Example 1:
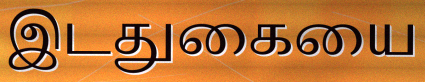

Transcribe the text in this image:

இடதுகையை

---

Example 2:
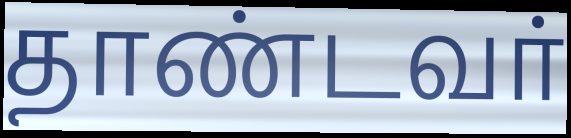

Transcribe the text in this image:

தாண்டவர்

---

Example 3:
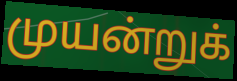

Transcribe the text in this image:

முயன்றுக்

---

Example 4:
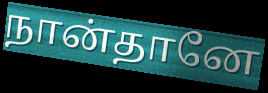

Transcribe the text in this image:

நான்தானே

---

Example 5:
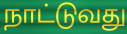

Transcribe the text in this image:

நாட்டுவது